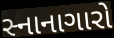
સ્નાનાગારો